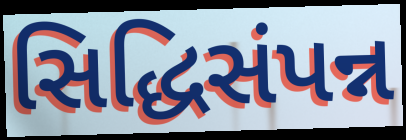
સિદ્ધિસંપન્ન